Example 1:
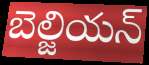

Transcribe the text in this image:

బెల్జియన్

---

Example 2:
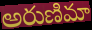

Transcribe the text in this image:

అరుణిమా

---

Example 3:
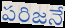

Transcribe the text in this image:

పరిజనే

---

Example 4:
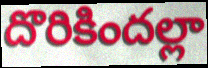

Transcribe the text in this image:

దొరికిందల్లా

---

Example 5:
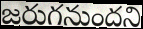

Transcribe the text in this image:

జరుగనుందని